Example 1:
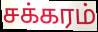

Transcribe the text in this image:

சக்கரம்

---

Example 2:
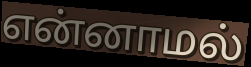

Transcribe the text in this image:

என்னாமல்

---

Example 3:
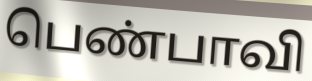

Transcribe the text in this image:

பெண்பாவி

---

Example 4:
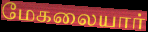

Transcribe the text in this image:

மேகலையார்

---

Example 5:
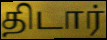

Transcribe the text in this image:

திடார்